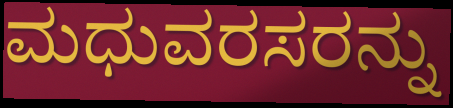
ಮಧುವರಸರನ್ನು